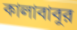
কালাবাবুর